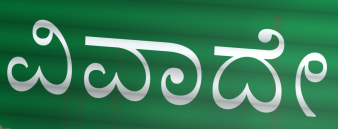
ವಿವಾದೇ